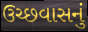
ઉચ્છવાસનું